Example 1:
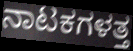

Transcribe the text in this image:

ನಾಟಕಗಳತ್ತ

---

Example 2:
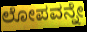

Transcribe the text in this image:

ಲೋಪವನ್ನೇ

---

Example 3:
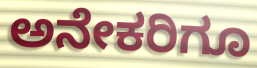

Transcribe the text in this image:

ಅನೇಕರಿಗೂ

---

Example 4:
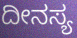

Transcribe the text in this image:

ದೀನಸ್ಯ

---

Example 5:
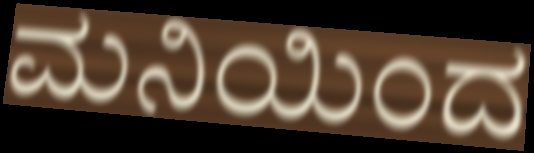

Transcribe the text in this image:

ಮನಿಯಿಂದ